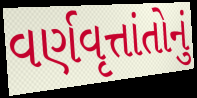
વર્ણવૃત્તાંતોનું